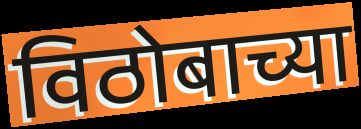
विठोबाच्या